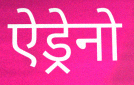
ऐड्रेनो